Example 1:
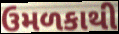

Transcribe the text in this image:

ઉમળકાથી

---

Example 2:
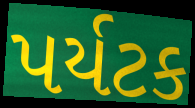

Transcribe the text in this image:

પર્યટક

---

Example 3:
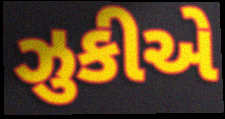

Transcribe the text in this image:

ઝુકીએ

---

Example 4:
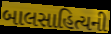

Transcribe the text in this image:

બાલસાહિત્યની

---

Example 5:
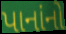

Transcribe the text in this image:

પાનાંનો